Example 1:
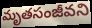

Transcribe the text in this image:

మృతసంజీవని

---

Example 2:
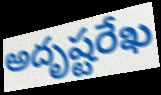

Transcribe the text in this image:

అదృష్టరేఖ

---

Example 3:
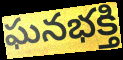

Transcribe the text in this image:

ఘనభక్తి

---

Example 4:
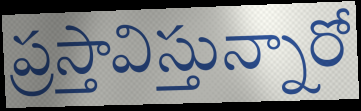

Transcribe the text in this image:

ప్రస్తావిస్తున్నారో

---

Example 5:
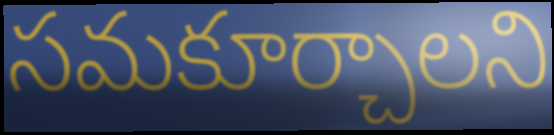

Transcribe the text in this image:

సమకూర్చాలని